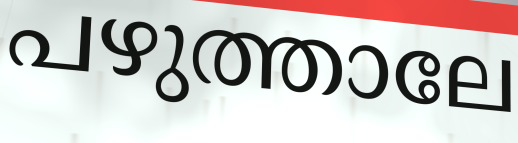
പഴുത്താലേ